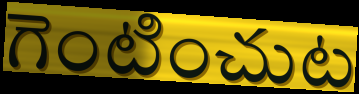
గెంటించుట